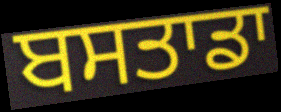
ਬਸਤਾਡਾ